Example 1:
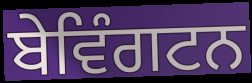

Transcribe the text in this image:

ਬੇਵਿੰਗਟਨ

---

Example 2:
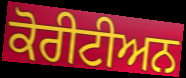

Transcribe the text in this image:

ਕੋਰੀਟੀਅਨ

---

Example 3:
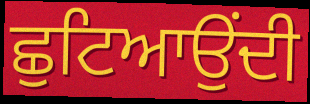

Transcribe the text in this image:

ਛੁਟਿਆਉਂਦੀ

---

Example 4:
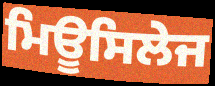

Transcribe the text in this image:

ਮਿਊਸਿਲੇਜ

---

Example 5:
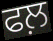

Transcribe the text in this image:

ਫਲ਼